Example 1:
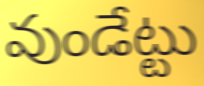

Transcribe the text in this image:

వుండేట్టు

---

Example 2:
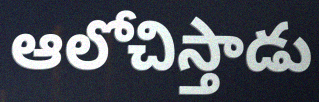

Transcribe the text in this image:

ఆలోచిస్తాడు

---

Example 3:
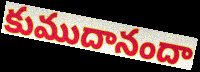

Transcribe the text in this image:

కుముదానందా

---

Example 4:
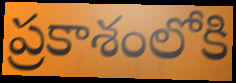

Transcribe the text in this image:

ప్రకాశంలోకి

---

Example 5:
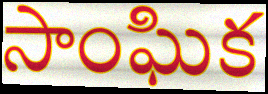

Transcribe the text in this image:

సాంఘిక